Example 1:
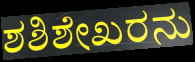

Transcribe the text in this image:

ಶಶಿಶೇಖರನು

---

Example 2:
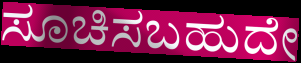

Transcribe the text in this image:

ಸೂಚಿಸಬಹುದೇ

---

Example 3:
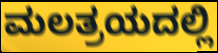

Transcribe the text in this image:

ಮಲತ್ರಯದಲ್ಲಿ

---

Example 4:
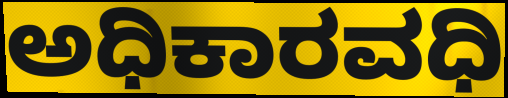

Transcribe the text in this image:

ಅಧಿಕಾರವಧಿ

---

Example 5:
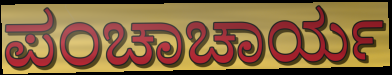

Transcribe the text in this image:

ಪಂಚಾಚಾರ್ಯ